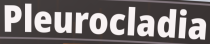
Pleurocladia